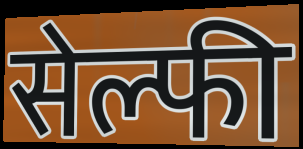
सेल्फी